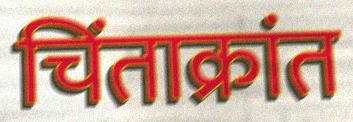
चिंताक्रांत